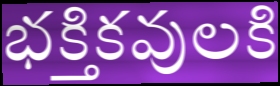
భక్తికవులకి